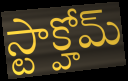
స్టాక్హోమ్